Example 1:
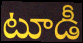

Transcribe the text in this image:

టూడీ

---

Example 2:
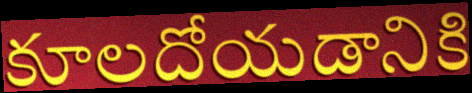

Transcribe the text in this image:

కూలదోయడానికి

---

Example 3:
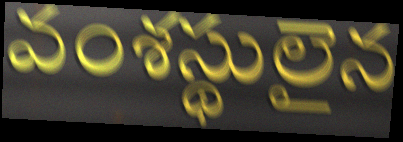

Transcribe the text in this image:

వంశస్థులైన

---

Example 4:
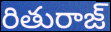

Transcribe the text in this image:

రితురాజ్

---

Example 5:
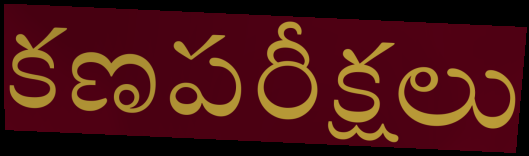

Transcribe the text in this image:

కణపరీక్షలు